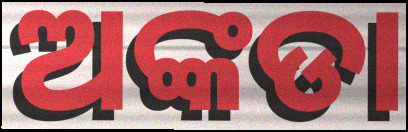
ଅଙ୍କଡା